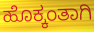
ಹೊಕ್ಕಂತಾಗಿ